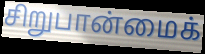
சிறுபான்மைக்